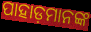
ପାହାଡ଼ମାନଙ୍କ